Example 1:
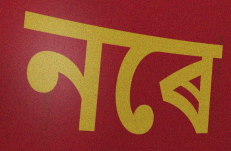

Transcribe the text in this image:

নৰে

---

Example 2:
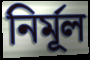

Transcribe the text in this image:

নিৰ্মূল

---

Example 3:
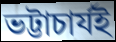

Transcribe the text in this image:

ভট্টাচাৰ্যই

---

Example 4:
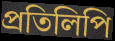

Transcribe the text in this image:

প্ৰতিলিপি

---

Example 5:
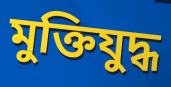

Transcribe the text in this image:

মুক্তিযুদ্ধ